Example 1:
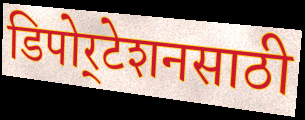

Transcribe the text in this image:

डिपोर्टेशनसाठी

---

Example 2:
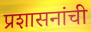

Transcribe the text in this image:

प्रशासनांची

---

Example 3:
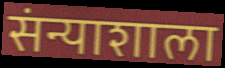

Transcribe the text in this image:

संन्याशाला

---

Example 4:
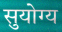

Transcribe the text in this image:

सुयोग्य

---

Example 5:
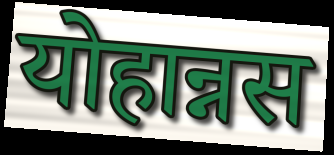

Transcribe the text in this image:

योहान्नस